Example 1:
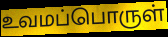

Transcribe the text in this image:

உவமப்பொருள்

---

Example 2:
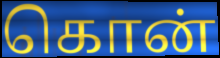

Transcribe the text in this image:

கொன்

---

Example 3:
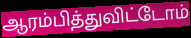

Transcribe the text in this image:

ஆரம்பித்துவிட்டோம்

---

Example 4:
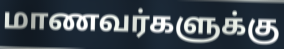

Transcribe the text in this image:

மாணவர்களுக்கு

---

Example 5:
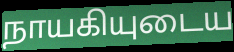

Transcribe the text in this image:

நாயகியுடைய